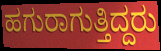
ಹಗುರಾಗುತ್ತಿದ್ದರು